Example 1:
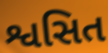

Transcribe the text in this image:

શ્વસિત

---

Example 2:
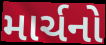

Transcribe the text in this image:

માર્ચનો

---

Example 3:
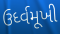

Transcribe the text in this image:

ઉર્ધ્વમૂખી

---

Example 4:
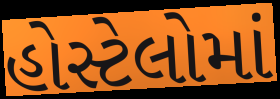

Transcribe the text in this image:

હોસ્ટેલોમાં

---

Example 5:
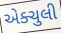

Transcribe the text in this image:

એક્ચુલી